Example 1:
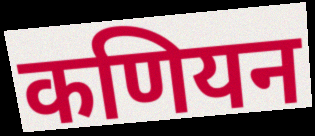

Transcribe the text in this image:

कणियन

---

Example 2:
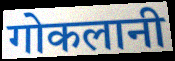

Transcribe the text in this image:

गोकलानी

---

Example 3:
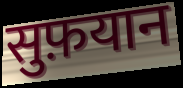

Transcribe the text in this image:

सुफ़यान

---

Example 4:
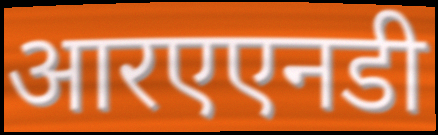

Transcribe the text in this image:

आरएएनडी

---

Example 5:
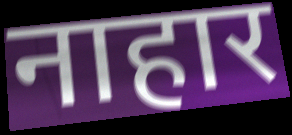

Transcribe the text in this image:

नाहार